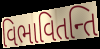
વિભાવિતન્તિ